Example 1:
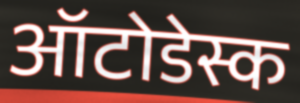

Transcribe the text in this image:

ऑटोडेस्क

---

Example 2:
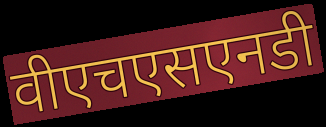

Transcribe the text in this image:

वीएचएसएनडी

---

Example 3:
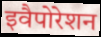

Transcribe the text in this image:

इवैपोरेशन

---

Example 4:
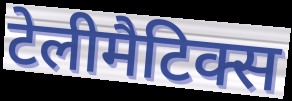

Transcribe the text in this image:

टेलीमैटिक्स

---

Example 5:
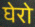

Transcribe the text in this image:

घेरो